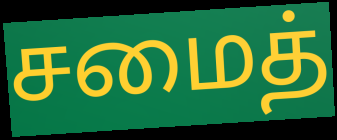
சமைத்